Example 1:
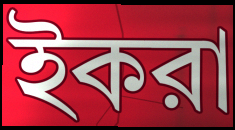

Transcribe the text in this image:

ইকরা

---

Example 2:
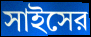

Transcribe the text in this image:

সাইসের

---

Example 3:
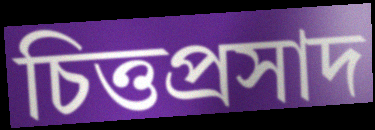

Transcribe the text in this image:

চিত্তপ্রসাদ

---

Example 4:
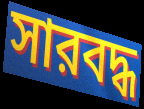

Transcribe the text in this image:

সারবদ্ধ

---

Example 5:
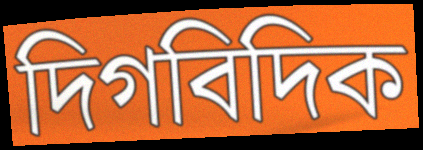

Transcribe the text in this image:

দিগবিদিক